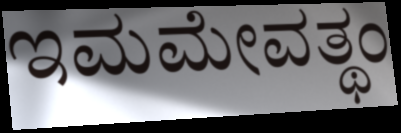
ಇಮಮೇವತ್ಥಂ